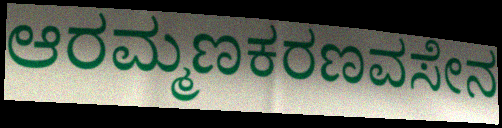
ಆರಮ್ಮಣಕರಣವಸೇನ